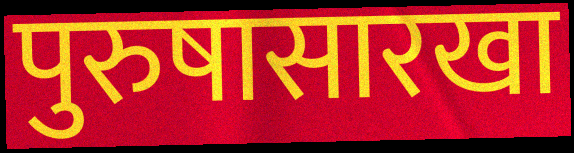
पुरुषासारखा